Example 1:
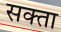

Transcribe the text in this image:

सक्ता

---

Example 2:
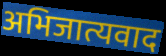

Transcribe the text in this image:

अभिजात्यवाद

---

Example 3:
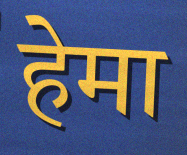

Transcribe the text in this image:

हेमा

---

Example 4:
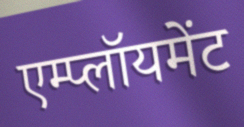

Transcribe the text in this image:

एम्प्लॉयमेंट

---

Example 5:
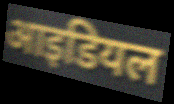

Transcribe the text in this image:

आइडियल